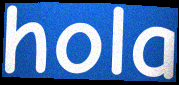
hola